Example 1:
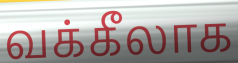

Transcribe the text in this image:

வக்கீலாக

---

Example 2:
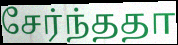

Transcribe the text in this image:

சேர்ந்ததா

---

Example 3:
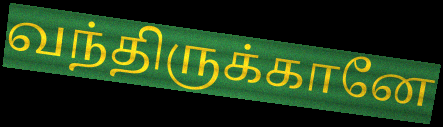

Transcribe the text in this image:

வந்திருக்கானே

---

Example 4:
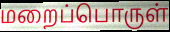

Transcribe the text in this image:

மறைப்பொருள்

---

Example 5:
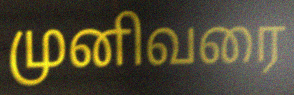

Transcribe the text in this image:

முனிவரை